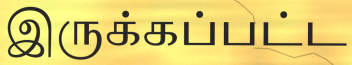
இருக்கப்பட்ட